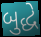
બુદ્ધે